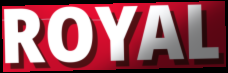
ROYAL